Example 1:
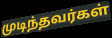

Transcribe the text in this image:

முடிந்தவர்கள்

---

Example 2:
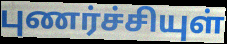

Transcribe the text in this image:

புணர்ச்சியுள்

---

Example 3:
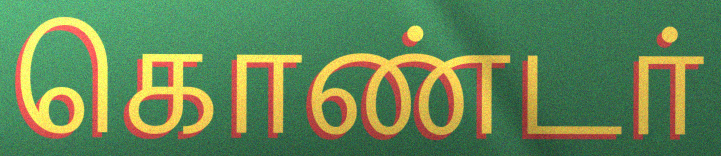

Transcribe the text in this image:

கொண்டர்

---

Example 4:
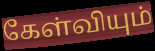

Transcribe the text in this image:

கேள்வியும்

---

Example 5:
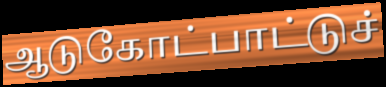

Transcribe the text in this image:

ஆடுகோட்பாட்டுச்